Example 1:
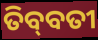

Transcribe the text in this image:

ତିବ୍‌ବତୀ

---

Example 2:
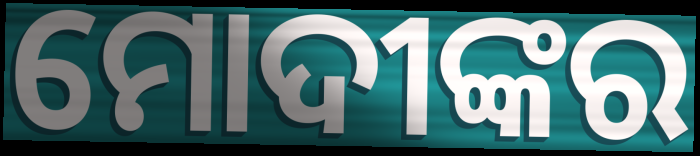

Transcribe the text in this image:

ମୋଦୀଙ୍କର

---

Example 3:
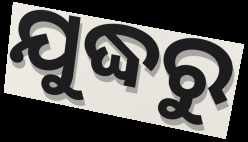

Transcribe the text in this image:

ଯୁଦ୍ଧରୁ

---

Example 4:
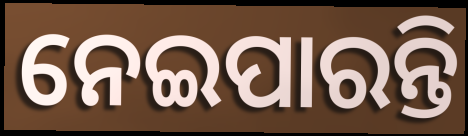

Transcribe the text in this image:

ନେଇପାରନ୍ତି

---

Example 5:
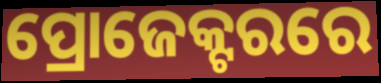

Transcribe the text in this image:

ପ୍ରୋଜେକ୍ଟରରେ